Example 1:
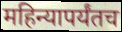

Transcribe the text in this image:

महिन्यापर्यंतच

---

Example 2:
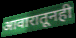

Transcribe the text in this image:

आवारातूनही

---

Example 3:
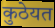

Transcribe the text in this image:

कुठेयत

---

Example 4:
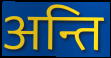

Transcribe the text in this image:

अन्ति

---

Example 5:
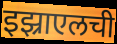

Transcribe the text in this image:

इझ्राएलची